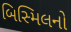
બિસ્મિલનો